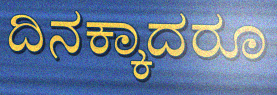
ದಿನಕ್ಕಾದರೂ